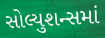
સોલ્યુશન્સમાં